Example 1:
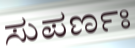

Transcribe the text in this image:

ಸುಪರ್ಣಃ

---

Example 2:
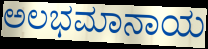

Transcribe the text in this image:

ಅಲಭಮಾನಾಯ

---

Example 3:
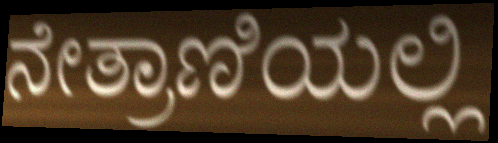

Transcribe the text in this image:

ನೇತ್ರಾಣಿಯಲ್ಲಿ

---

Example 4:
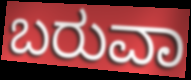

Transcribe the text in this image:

ಬರುವಾ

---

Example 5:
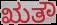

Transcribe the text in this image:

ಋತೌ